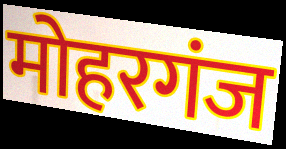
मोहरगंज